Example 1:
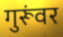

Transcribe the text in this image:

गुरूंवर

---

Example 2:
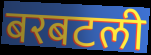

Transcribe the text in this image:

बरबटली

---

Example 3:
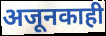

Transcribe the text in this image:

अजूनकाही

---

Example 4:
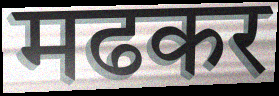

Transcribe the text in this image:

मढकर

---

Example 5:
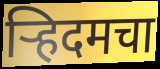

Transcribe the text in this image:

ऱ्हिदमचा